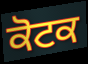
ਕੋਟਕ